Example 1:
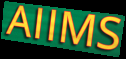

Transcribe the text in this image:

AIIMS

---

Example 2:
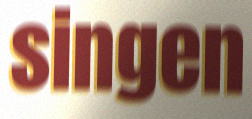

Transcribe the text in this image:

singen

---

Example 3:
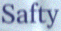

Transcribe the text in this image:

Safty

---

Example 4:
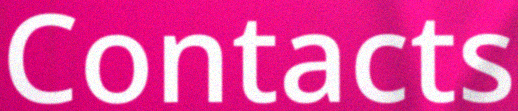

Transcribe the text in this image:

Contacts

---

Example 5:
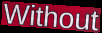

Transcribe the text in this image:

Without